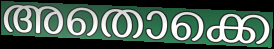
അതൊക്കെ